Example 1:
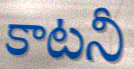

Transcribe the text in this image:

కాటనీ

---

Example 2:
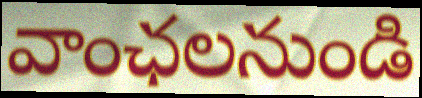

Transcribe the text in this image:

వాంఛలనుండి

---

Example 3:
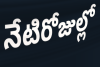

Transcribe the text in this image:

నేటిరోజుల్లో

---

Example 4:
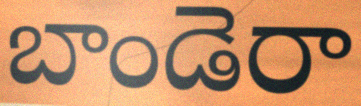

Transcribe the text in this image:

బాండెరా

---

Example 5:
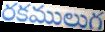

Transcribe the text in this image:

రకములుగ